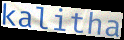
kalitha